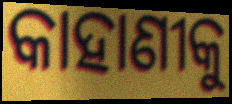
କାହାଣୀକୁ